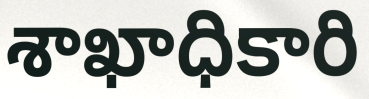
శాఖాధికారి